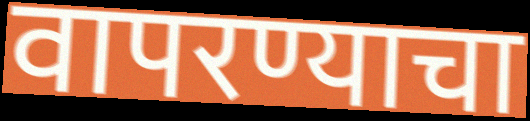
वापरण्याचा